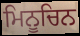
ਮਿਨੂਚਿਨ